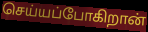
செய்யப்போகிறான்